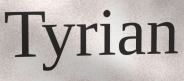
Tyrian